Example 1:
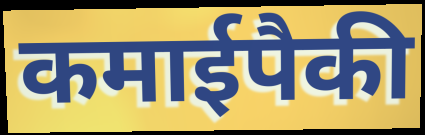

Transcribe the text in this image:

कमाईपैकी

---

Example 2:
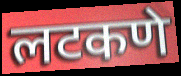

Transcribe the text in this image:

लटकणे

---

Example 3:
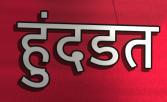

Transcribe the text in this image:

हुंदडत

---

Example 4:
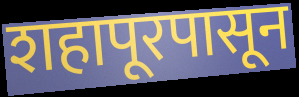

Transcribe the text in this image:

शहापूरपासून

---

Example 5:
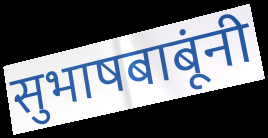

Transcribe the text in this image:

सुभाषबाबूंनी